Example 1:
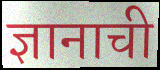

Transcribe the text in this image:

ज्ञानाची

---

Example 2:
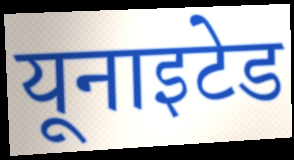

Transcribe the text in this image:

यूनाइटेड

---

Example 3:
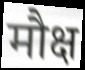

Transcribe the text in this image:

मौक्ष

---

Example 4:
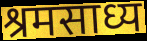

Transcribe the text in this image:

श्रमसाध्य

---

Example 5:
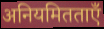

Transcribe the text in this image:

अनियमितताएँ